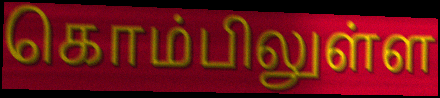
கொம்பிலுள்ள